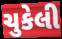
ચુકેલી